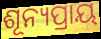
ଶୂନ୍ୟପ୍ରାୟ